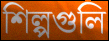
শিল্পগুলি